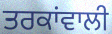
ਤਰਕਾਂਵਾਲੀ